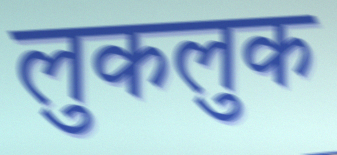
लुकलुक